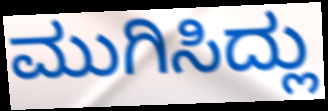
ಮುಗಿಸಿದ್ಲು